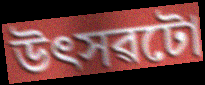
উৎসৱটো